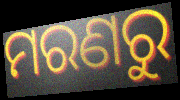
ମରଣରୁ